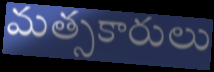
మత్సకారులు